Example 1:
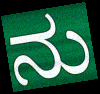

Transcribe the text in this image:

ನು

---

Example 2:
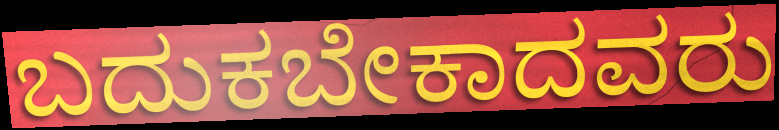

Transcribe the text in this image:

ಬದುಕಬೇಕಾದವರು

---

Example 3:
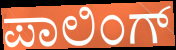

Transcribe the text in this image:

ಪಾಲಿಂಗ್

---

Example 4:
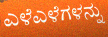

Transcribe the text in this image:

ಎಳೆಎಳೆಗಳನ್ನು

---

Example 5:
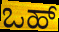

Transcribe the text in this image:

ಒಹ್